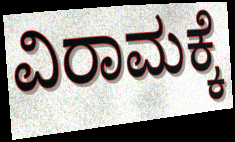
ವಿರಾಮಕ್ಕೆ